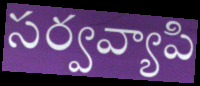
సర్వవ్యాపి